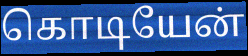
கொடியேன்